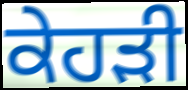
ਕੇਹੜੀ